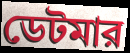
ডেটমার